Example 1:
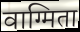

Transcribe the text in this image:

वाग्मिता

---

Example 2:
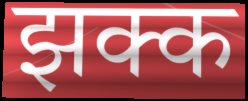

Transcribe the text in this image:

झक्क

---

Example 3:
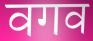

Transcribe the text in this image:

वगव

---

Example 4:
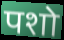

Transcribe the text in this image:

पशो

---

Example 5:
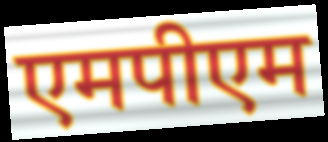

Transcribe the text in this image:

एमपीएम